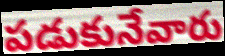
పడుకునేవారు